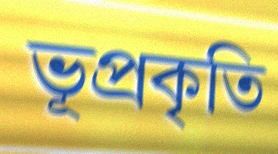
ভূপ্রকৃতি